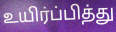
உயிர்ப்பித்து